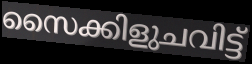
സൈക്കിളുചവിട്ട്